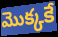
మొక్కకే